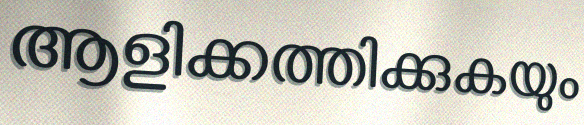
ആളിക്കത്തിക്കുകയും